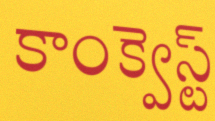
కాంక్వెస్ట్